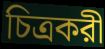
চিত্রকরী